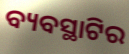
ବ୍ୟବସ୍ଥାଟିର